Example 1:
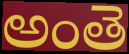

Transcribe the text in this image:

అంతె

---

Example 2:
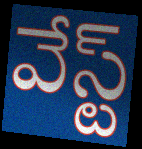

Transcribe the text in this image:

వేస్ట్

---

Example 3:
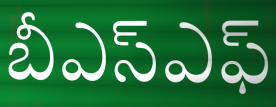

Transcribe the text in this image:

బీఎస్ఎఫ్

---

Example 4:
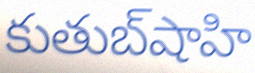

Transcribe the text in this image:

కుతుబ్‌షాహి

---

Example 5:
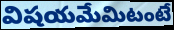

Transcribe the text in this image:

విషయమేమిటంటే